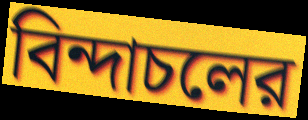
বিন্দাচলের